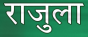
राजुला